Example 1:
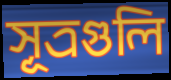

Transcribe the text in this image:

সূত্রগুলি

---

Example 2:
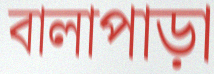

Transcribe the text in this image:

বালাপাড়া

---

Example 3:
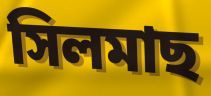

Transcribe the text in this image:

সিলমাছ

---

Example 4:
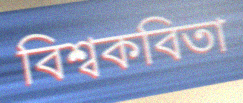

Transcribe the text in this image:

বিশ্বকবিতা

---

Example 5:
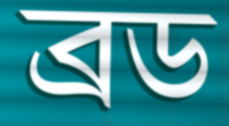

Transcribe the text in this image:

ব্রড